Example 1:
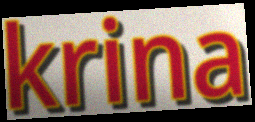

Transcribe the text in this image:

krina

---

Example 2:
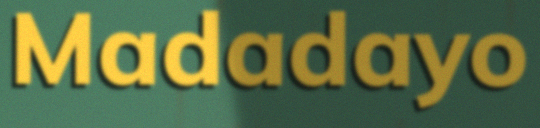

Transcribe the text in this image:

Madadayo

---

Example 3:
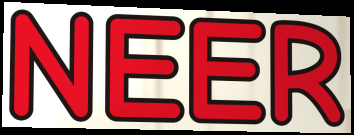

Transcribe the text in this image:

NEER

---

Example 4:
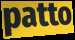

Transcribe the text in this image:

patto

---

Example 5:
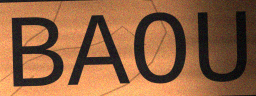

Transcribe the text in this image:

BAOU